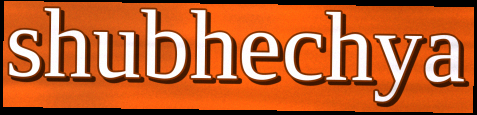
shubhechya